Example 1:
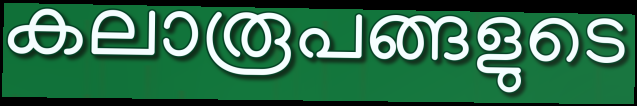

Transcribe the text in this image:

കലാരൂപങ്ങളുടെ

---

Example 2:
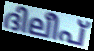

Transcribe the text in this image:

ദിലീപ്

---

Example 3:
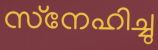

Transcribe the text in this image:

സ്‌നേഹിച്ചു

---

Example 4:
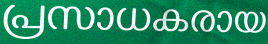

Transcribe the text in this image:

പ്രസാധകരായ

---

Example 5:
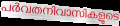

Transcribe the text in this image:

പർവതനിവാസികളുടെ